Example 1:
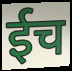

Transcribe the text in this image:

ईच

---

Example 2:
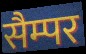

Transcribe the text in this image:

सैम्पर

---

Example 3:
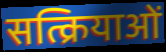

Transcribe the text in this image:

सत्क्रियाओं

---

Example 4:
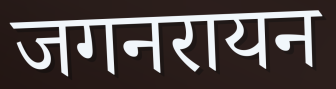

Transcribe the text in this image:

जगनरायन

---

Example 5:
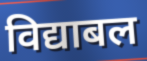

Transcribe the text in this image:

विद्याबल